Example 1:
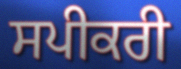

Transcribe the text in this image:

ਸਪੀਕਰੀ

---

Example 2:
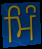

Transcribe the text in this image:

ਮਿੰ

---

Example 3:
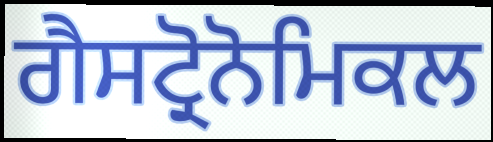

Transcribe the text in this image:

ਗੈਸਟ੍ਰੋਨੋਮਿਕਲ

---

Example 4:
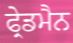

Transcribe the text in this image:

ਫ੍ਰੇਡਮੈਨ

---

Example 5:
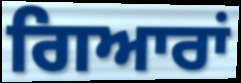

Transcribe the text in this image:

ਗਿਆਰਾਂ